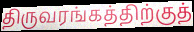
திருவரங்கத்திற்குத்